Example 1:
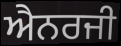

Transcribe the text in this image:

ਐਨਰਜੀ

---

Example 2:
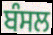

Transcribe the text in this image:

ਬੰਸਲ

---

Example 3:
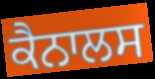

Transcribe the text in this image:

ਕੈਨਾਲਸ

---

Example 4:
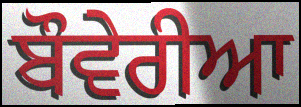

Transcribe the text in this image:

ਬੌਵੇਰੀਆ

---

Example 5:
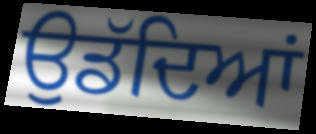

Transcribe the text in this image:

ਉਡੱਦਿਆਂ